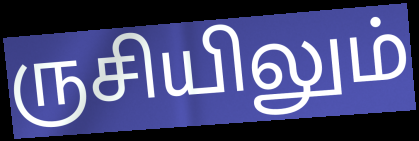
ருசியிலும்